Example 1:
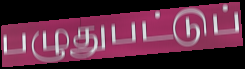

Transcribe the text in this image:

பழுதுபட்டுப்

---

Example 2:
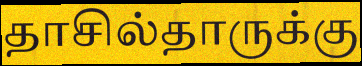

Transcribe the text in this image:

தாசில்தாருக்கு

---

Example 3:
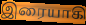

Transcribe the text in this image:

இரையாகி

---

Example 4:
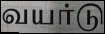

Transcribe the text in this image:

வயர்டு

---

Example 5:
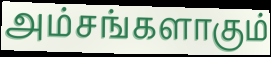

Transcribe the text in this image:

அம்சங்களாகும்